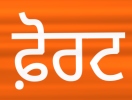
ਫ਼ੋਰਟ